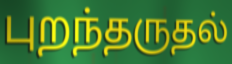
புறந்தருதல்